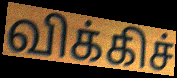
விக்கிச்